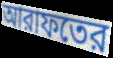
আরাফতের